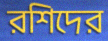
রশিদের